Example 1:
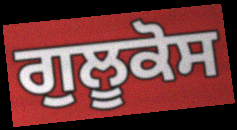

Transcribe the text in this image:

ਗੁਲੂਕੋਸ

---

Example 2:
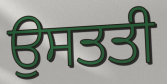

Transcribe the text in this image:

ਉਸਤਤੀ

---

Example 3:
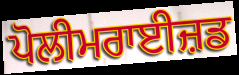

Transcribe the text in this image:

ਪੋਲੀਮਰਾਈਜ਼ਡ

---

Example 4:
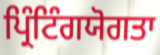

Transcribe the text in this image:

ਪ੍ਰਿੰਟਿੰਗਯੋਗਤਾ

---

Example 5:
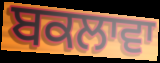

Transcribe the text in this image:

ਬਕਲਾਵਾ